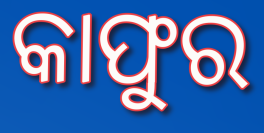
କାଫୁର